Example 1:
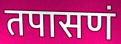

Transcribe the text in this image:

तपासणं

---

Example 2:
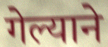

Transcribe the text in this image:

गेल्‍याने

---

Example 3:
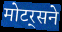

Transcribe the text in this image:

मोटर्सने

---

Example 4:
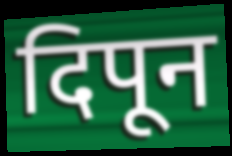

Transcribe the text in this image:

दिपून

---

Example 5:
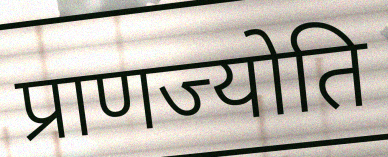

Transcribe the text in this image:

प्राणज्योति